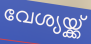
വേശ്യയ്ക്ക്